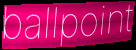
ballpoint